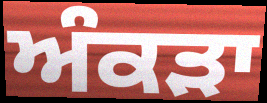
ਅੰਕੜਾ